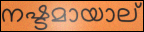
നഷ്ടമായാല്